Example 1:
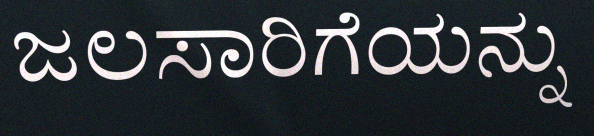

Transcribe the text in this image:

ಜಲಸಾರಿಗೆಯನ್ನು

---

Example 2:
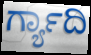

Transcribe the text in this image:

ರ್ಗ್ಯಾದಿ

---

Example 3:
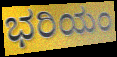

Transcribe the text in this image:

ಭರಿಯಂ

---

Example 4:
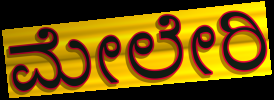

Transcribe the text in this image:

ಮೇಲೇರಿ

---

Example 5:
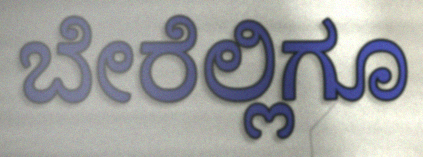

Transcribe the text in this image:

ಬೇರೆಲ್ಲಿಗೂ